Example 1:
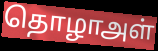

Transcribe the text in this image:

தொழாஅள்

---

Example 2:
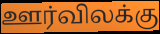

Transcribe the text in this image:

ஊர்விலக்கு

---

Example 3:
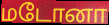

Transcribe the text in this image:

மடோனா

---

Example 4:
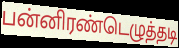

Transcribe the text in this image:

பன்னிரண்டெழுத்தடி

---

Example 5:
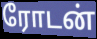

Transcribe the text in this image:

ரோடன்